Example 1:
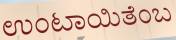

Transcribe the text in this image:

ಉಂಟಾಯಿತೆಂಬ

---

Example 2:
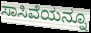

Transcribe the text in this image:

ಸಾಸಿವೆಯನ್ನೂ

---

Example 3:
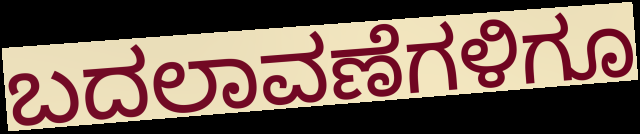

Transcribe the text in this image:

ಬದಲಾವಣೆಗಳಿಗೂ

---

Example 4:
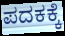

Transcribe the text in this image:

ಪದಕಕ್ಕೆ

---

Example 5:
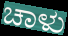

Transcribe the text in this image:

ಚಾಳು